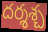
దర్శశ్చ